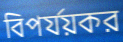
বিপর্যয়কর